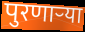
पुरणाऱ्या